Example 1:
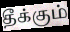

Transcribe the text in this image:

தீக்கும்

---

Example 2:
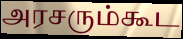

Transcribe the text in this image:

அரசரும்கூட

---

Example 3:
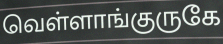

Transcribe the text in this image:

வெள்ளாங்குருகே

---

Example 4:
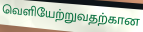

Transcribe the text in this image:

வெளியேற்றுவதற்கான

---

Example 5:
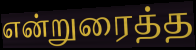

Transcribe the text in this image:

என்றுரைத்த